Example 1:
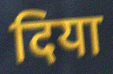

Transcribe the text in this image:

दिया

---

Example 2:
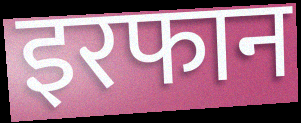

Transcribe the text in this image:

इरफान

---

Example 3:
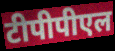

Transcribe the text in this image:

टीपीपीएल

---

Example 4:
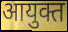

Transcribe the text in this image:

आयुक्त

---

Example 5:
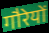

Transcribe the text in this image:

गौरेयों